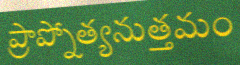
ప్రాప్నోత్యనుత్తమం